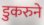
डुकरुने